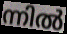
ന്നിൽ